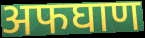
अफघाण